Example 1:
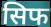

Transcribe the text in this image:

सिफ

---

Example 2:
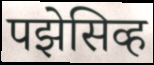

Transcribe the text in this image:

पझेसिव्ह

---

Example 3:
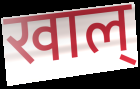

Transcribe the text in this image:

खाल्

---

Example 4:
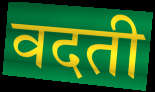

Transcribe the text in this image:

वदती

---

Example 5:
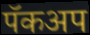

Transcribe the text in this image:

पॅकअप